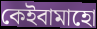
কেইবামাহো